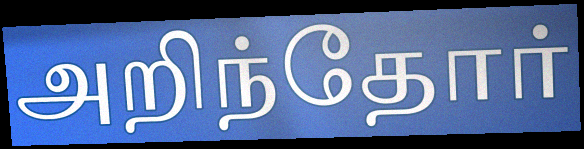
அறிந்தோர்